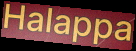
Halappa